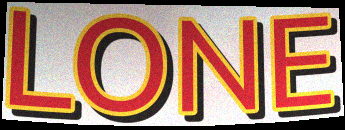
LONE